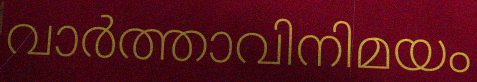
വാർത്താവിനിമയം